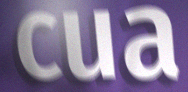
cua